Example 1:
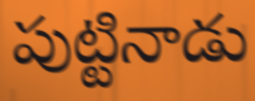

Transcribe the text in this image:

పుట్టినాడు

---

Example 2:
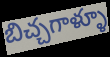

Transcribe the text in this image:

బిచ్చగాళ్ళూ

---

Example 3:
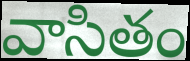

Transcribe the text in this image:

వాసితం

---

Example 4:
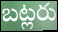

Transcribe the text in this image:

బట్లరు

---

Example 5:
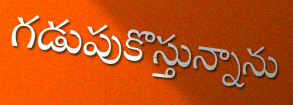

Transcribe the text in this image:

గడుపుకొస్తున్నాను